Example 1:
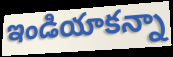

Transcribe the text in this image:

ఇండియాకన్నా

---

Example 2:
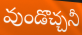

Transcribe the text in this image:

వుండొచ్చనీ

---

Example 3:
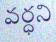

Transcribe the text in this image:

వర్ధని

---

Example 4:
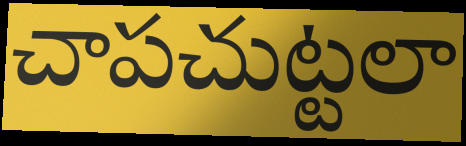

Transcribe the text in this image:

చాపచుట్టలా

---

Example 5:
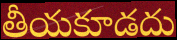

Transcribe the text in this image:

తీయకూడదు